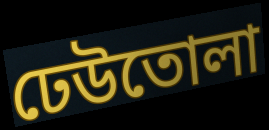
ঢেউতোলা